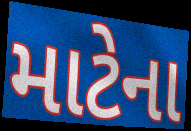
માટેના